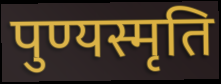
पुण्यस्मृति